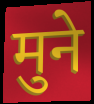
मुने